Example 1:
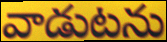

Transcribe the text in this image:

వాడుటను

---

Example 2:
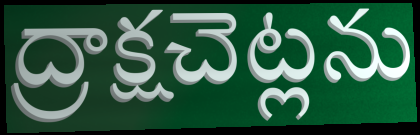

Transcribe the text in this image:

ద్రాక్షచెట్లను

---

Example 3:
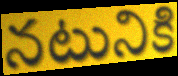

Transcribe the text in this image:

నటునికి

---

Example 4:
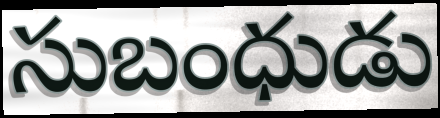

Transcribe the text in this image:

సుబంధుడు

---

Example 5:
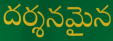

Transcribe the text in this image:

దర్శనమైన